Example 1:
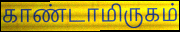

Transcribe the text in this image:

காண்டாமிருகம்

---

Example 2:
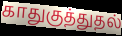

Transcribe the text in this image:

காதுகுத்துதல்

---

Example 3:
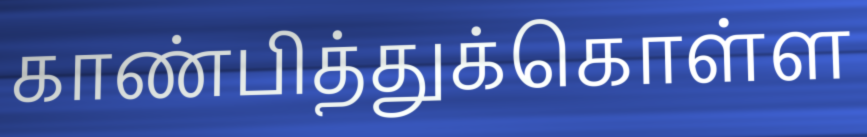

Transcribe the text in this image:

காண்பித்துக்கொள்ள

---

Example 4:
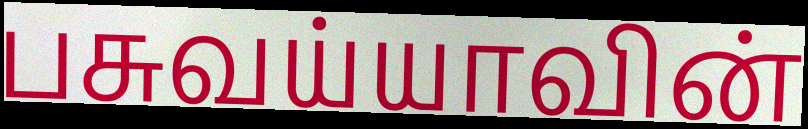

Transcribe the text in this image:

பசுவய்யாவின்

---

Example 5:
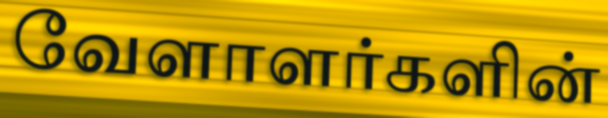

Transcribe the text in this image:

வேளாளர்களின்